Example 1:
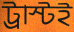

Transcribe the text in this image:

ট্রাস্টই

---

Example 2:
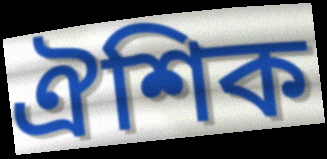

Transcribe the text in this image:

ঐশিক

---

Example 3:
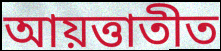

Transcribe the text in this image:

আয়ত্তাতীত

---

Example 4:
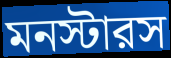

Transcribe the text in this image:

মনস্টারস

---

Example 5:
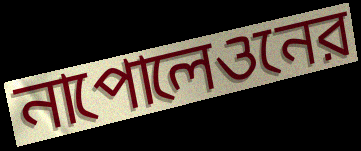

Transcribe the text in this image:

নাপোলেওনের